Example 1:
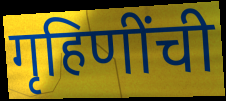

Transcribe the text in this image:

गृहिणींची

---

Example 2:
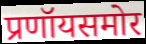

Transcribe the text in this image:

प्रणॉयसमोर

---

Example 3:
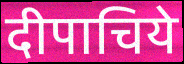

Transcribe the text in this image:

दीपाचिये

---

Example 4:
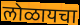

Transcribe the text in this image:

लोळायचा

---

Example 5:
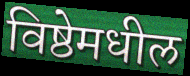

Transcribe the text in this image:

विष्ठेमधील